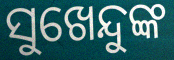
ସୁଖେନ୍ଦୁଙ୍କ